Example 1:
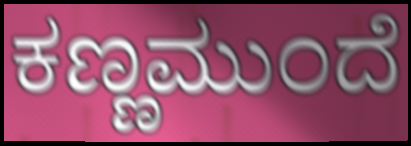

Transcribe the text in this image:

ಕಣ್ಣಮುಂದೆ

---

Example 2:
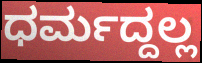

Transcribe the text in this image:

ಧರ್ಮದ್ದಲ್ಲ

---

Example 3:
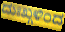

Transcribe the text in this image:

ದುಃಖ್ಗಳಿಂದ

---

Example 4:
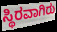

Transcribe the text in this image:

ಸ್ಥಿರವಾಗಿರು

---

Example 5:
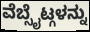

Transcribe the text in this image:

ವೆಬ್ಸೈಟ್ಗಳನ್ನು